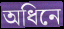
অধিনে